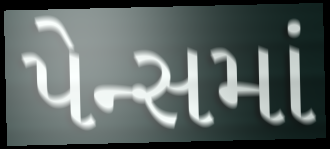
પેન્સમાં